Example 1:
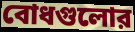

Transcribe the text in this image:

বোধগুলোর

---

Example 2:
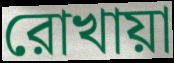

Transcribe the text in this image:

রোখায়া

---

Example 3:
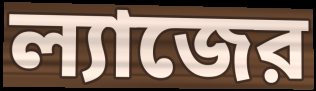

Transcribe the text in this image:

ল্যাজের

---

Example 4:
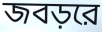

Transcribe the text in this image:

জবড়রে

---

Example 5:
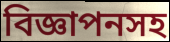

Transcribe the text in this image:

বিজ্ঞাপনসহ